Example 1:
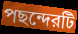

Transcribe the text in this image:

পছন্দেরটি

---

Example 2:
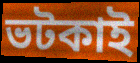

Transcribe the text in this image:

ভটকাই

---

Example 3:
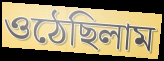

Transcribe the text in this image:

ওঠেছিলাম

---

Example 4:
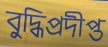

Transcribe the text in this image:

বুদ্ধিপ্রদীপ্ত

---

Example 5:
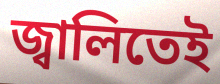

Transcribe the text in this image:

জ্বালিতেই